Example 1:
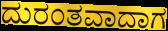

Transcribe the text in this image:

ದುರಂತವಾದಾಗ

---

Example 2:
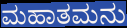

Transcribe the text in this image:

ಮಹಾತಮನು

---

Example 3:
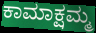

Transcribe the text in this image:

ಕಾಮಾಕ್ಷಮ್ಮ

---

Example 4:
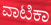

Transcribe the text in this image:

ವಾಟಿಕಾ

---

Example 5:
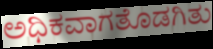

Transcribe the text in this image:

ಅಧಿಕವಾಗತೊಡಗಿತು